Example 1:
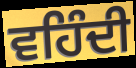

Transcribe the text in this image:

ਵਹਿੰਦੀ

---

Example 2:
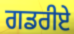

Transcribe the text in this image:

ਗਡਰੀਏ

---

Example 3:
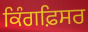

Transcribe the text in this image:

ਕਿੰਗਫ਼ਿਸਰ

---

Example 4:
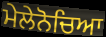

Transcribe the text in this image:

ਮੇਲੇਨੋਚਿਆ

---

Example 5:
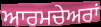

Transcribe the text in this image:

ਆਰਮਚੇਅਰਾਂ